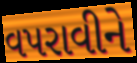
વપરાવીને